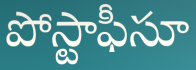
పోస్టాఫీసూ